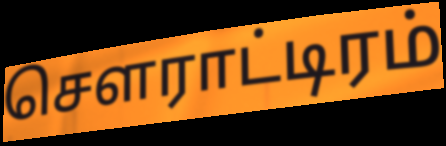
சௌராட்டிரம்